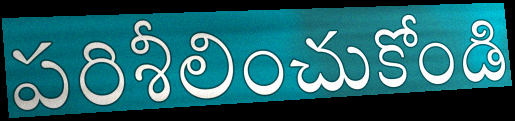
పరిశీలించుకోండి